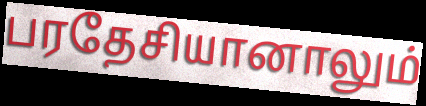
பரதேசியானாலும்